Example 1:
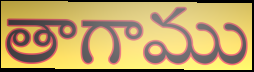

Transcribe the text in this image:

తాగాము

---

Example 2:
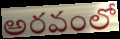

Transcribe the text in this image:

అరవంలో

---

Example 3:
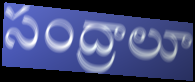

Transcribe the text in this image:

సంద్రాలూ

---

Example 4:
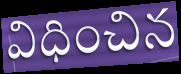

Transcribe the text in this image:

విధించిన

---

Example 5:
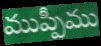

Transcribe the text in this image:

ముప్పీము